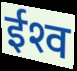
ईश्व